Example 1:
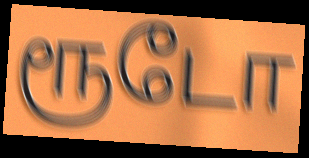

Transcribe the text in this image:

ரூடோ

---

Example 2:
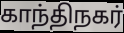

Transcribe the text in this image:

காந்திநகர்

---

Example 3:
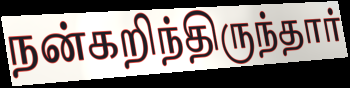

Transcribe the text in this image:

நன்கறிந்திருந்தார்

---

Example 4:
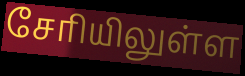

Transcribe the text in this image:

சேரியிலுள்ள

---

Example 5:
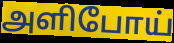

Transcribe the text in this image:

அளிபோய்